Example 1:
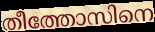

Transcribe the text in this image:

തീത്തോസിനെ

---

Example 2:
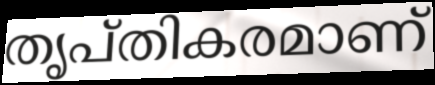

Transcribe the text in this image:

തൃപ്തികരമാണ്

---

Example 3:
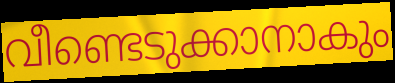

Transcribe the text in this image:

വീണ്ടെടുക്കാനാകും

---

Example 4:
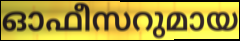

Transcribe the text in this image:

ഓഫീസറുമായ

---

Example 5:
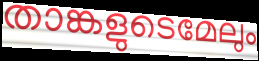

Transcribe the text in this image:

താങ്കളുടെമേലും